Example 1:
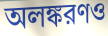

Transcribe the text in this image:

অলঙ্করণও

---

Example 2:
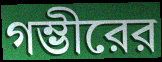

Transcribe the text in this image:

গম্ভীরের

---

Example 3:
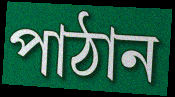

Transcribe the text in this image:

পাঠান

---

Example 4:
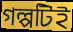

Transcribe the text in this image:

গল্পটিই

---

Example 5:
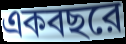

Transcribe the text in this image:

একবছরে